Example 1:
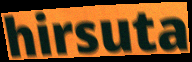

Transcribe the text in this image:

hirsuta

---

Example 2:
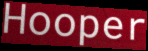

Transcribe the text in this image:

Hooper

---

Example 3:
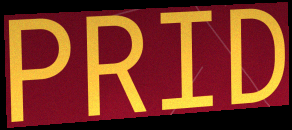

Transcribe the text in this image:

PRID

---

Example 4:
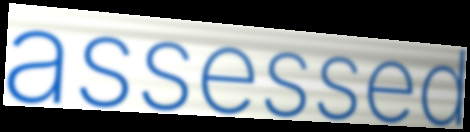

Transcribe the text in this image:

assessed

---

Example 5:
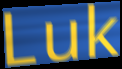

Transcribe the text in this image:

Luk